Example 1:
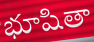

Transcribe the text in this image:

భూషితా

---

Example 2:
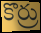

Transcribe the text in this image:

కొర్రు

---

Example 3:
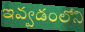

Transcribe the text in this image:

ఇవ్వడంలోని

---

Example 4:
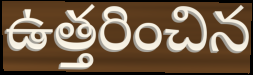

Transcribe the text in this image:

ఉత్తరించిన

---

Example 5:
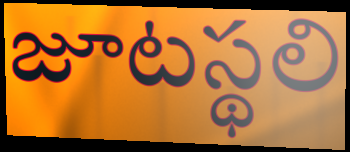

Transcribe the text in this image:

జూటస్థలి